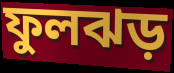
ফুলঝড়